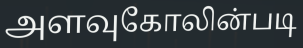
அளவுகோலின்படி